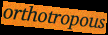
orthotropous